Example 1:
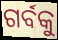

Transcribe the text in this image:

ଗର୍ବକୁ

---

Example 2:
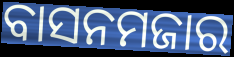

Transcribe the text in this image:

ବାସନମଜାର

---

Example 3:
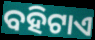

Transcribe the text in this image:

ବହିଟାଏ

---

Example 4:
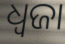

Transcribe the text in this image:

ଧ୍ୱଜା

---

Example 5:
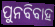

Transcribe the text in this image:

ପୁନବିବାହ